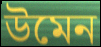
উমেন